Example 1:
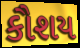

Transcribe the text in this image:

કૌશય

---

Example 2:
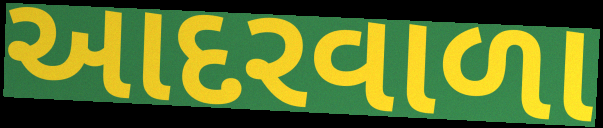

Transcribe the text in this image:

આદરવાળા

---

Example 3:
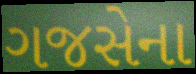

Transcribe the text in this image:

ગજસેના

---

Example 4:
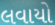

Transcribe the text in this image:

લવાયો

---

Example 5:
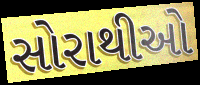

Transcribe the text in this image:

સોરાથીઓ